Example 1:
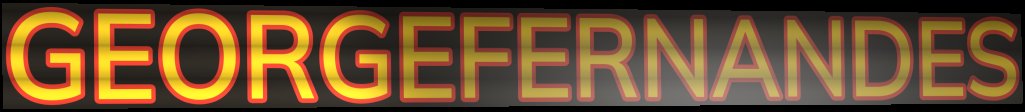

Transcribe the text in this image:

GEORGEFERNANDES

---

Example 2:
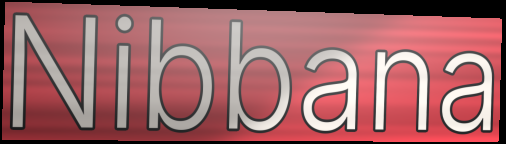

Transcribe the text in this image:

Nibbana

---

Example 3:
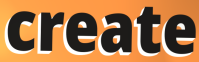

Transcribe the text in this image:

create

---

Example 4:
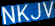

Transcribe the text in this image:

NKJV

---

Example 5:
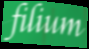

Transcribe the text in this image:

filium